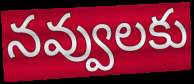
నవ్వులకు